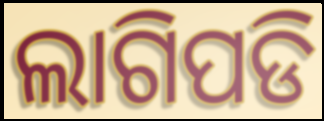
ଲାଗିପଡି